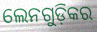
ଲେନଗୁଡ଼ିକର